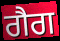
ਗੈਗ